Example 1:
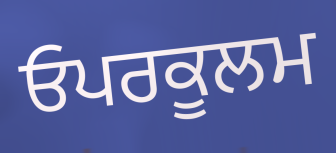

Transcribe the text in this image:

ਓਪਰਕੂਲਮ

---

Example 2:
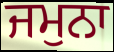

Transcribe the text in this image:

ਜਮੁਨਾ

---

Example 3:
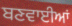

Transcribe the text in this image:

ਬਣਵਾਈਆਂ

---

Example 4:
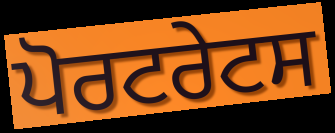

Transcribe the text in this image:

ਪੋਰਟਰੇਟਸ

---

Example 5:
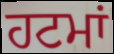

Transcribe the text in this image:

ਹਟਮਾਂ